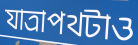
যাত্রাপথটাও